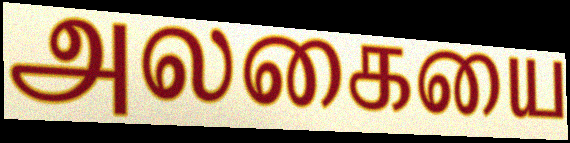
அலகையை